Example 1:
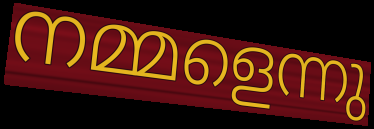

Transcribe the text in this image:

നമ്മളെന്നു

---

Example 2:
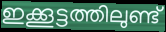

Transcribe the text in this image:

ഇക്കൂട്ടത്തിലുണ്ട്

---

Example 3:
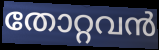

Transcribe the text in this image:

തോറ്റവൻ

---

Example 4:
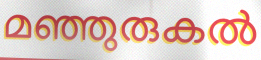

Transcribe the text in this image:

മഞ്ഞുരുകൽ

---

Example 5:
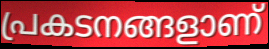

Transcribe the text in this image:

പ്രകടനങ്ങളാണ്